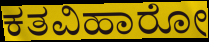
ಕತವಿಹಾರೋ